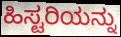
ಹಿಸ್ಟರಿಯನ್ನು